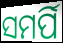
ସମର୍ପି